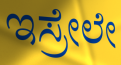
ಇಸ್ರೇಲೇ